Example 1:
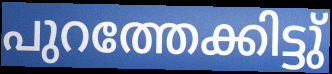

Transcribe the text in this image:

പുറത്തേക്കിട്ടു്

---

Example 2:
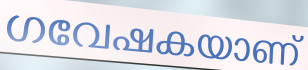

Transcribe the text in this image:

ഗവേഷകയാണ്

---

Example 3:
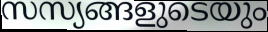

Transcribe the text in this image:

സസ്യങ്ങളുടെയും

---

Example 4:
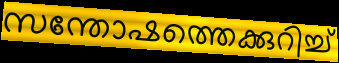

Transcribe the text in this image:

സന്തോഷത്തെക്കുറിച്ച്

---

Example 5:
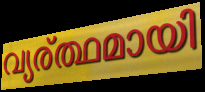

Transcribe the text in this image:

വ്യര്ത്ഥമായി